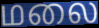
மலை